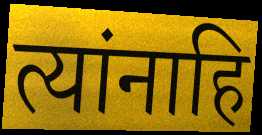
त्यांनाहि